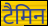
टैमिन